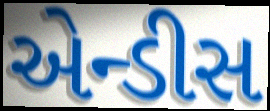
એન્ડીસ